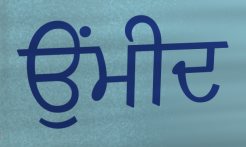
ਉਂਮੀਦ